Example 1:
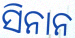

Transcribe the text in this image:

ସିନାନ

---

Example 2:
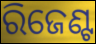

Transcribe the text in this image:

ରିଜେଣ୍ଟ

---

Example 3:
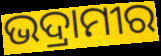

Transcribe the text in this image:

ଭଦ୍ରାମୀର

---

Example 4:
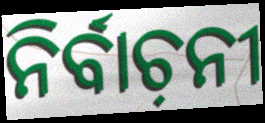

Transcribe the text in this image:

ନିର୍ବାଚ଼ନୀ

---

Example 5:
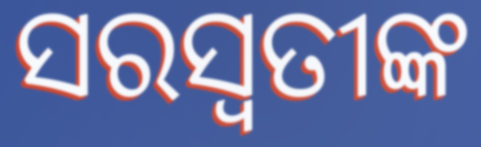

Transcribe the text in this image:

ସରସ୍ବତୀଙ୍କ